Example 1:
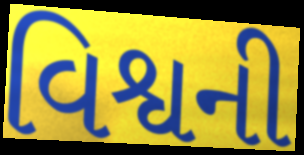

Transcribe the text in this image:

વિશ્વની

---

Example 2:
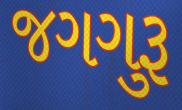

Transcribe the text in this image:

જગગુરૂ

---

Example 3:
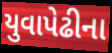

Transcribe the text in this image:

યુવાપેઢીના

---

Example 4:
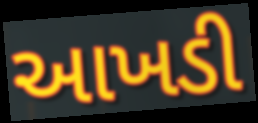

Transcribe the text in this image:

આખડી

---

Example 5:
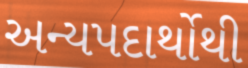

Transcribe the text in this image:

અન્યપદાર્થોથી